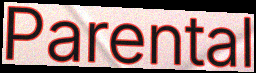
Parental